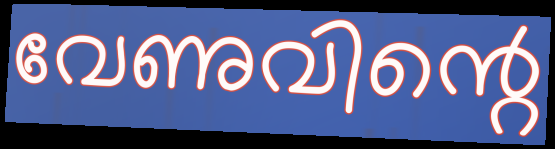
വേണുവിന്റെ